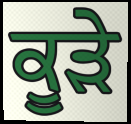
ਕੂੜੇ